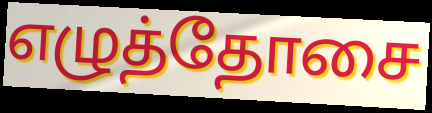
எழுத்தோசை